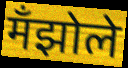
मँझोले